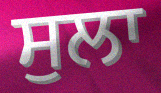
ਸੁਲਾ